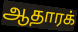
ஆதாரக்